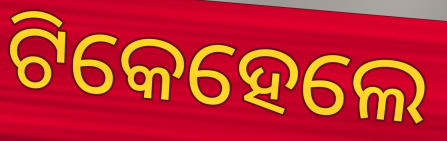
ଟିକେହେଲେ